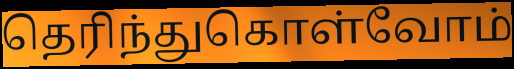
தெரிந்துகொள்வோம்